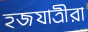
হজযাত্রীরা